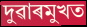
দুৱাৰমুখত